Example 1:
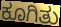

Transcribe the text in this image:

ಕೂಗಿತು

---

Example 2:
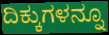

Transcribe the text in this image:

ದಿಕ್ಕುಗಳನ್ನೂ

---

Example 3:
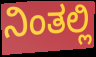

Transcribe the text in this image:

ನಿಂತಲ್ಲಿ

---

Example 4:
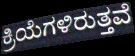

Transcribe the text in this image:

ಕ್ರಿಯೆಗಳಿರುತ್ತವೆ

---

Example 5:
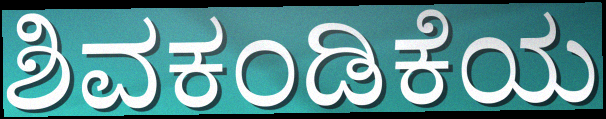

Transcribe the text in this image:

ಶಿವಕಂಡಿಕೆಯ